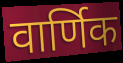
वार्णिक